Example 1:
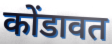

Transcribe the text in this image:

कोंडावत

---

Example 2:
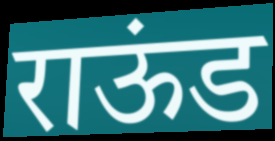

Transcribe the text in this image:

राऊंड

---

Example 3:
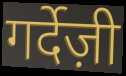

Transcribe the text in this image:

गर्देज़ी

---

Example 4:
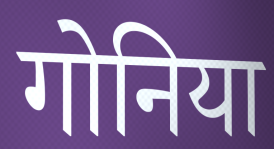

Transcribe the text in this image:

गोनिया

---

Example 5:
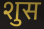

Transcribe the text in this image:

शुस